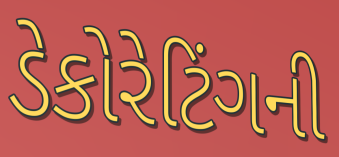
ડેકોરેટિંગની